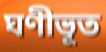
ঘণীভূত